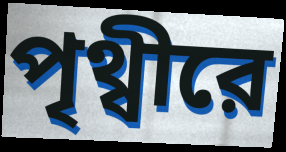
পৃথ্বীরে